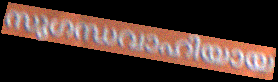
സുഗന്ധവാഹിയായ